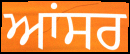
ਆਂਸਰ